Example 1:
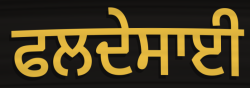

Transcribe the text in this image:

ਫਲਦੇਸਾਈ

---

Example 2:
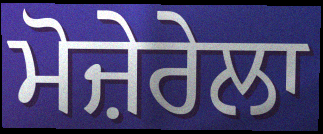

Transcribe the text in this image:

ਮੋਜ਼ੇਰੇਲਾ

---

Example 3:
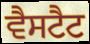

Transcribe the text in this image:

ਵੈਸਟੈਟ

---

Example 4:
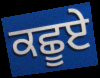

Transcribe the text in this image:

ਕਛੂਏ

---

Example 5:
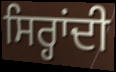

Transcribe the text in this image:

ਸਿਰ੍ਹਾਂਦੀ